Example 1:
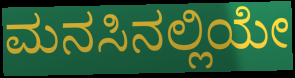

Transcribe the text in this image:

ಮನಸಿನಲ್ಲಿಯೇ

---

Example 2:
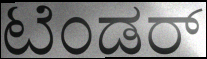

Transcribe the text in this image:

ಟೆಂಡರ್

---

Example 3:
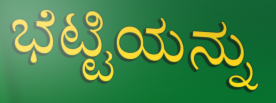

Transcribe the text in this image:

ಭೆಟ್ಟಿಯನ್ನು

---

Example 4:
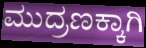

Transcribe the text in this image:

ಮುದ್ರಣಕ್ಕಾಗಿ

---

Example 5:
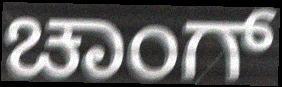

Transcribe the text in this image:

ಚಾಂಗ್